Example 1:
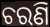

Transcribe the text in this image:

ଚରଣି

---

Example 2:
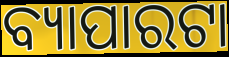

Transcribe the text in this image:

ବ୍ୟାପାରଟା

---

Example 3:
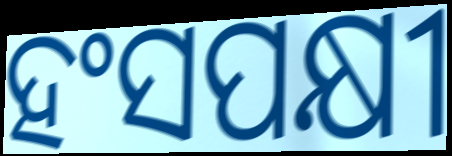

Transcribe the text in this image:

ହଂସପକ୍ଷୀ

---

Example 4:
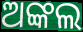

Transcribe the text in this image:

ଅଙ୍କଲ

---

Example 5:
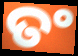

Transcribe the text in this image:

ତଂ